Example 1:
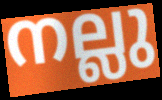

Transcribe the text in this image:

നല്ലു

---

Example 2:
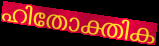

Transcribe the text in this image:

ഹിതോക്തിക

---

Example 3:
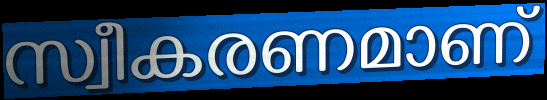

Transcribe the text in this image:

സ്വീകരണമാണ്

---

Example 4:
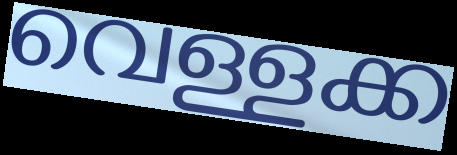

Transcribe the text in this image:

വെള്ളക്ക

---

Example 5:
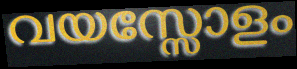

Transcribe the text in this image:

വയസ്സോളം